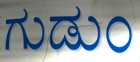
ಗುಡುಂ